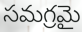
సమగ్రమై